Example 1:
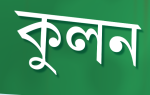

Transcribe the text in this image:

কুলন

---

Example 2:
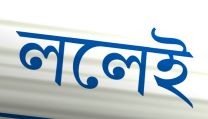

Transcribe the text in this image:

ললেই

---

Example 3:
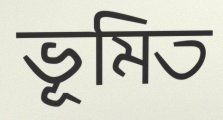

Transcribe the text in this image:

ভূমিত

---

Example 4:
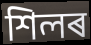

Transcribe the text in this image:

শিলৰ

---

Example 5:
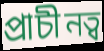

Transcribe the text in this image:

প্ৰাচীনত্ব